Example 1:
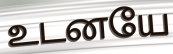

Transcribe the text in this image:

உடனயே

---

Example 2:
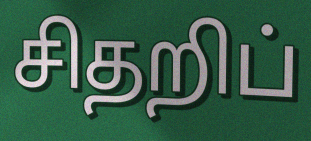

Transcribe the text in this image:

சிதறிப்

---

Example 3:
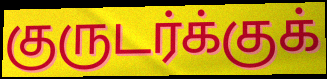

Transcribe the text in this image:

குருடர்க்குக்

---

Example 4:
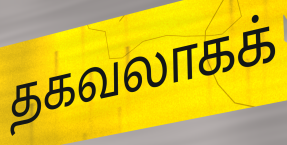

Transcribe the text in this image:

தகவலாகக்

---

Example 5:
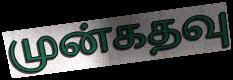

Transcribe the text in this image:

முன்கதவு